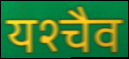
यश्चैव